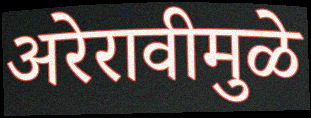
अरेरावीमुळे